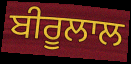
ਬੀਰੂਲਾਲ